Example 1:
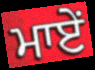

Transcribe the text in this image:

ਮਾਏਂ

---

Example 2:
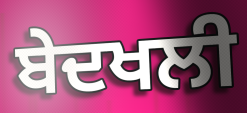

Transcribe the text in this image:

ਬੇਦਖਲੀ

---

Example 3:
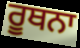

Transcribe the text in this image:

ਰੂਥਨਾ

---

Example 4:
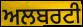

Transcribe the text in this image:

ਅਲਬਰਟੀ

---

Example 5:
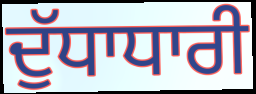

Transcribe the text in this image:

ਦੁੱਧਾਧਾਰੀ